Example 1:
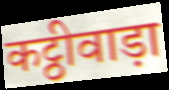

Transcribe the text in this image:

कट्ठीवाड़ा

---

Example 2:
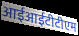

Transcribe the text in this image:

आईआईटीटीएम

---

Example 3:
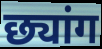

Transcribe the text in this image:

छ्यांग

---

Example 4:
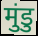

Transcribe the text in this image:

मुंडु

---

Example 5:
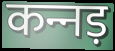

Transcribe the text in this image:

कन्‍नड़